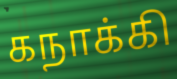
கநாக்கி